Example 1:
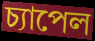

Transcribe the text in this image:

চ্যাপেল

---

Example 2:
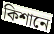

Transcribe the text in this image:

কিশানে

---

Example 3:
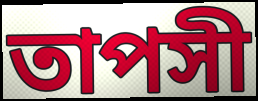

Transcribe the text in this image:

তাপসী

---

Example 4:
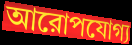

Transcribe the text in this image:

আরোপযোগ্য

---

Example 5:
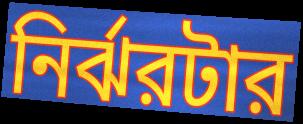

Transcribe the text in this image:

নির্ঝরটার